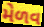
મેળવ